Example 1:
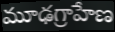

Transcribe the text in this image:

మూఢగ్రాహేణ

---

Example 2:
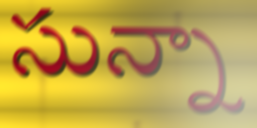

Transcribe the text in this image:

సున్నా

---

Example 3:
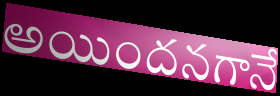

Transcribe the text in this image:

అయిందనగానే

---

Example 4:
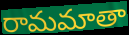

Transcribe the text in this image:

రామమాతా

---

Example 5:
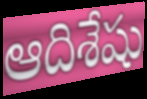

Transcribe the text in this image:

ఆదిశేషు